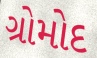
ગ્રોમોદ